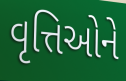
વૃત્તિઓને